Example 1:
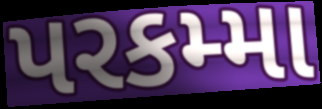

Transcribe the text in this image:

પરકમ્મા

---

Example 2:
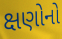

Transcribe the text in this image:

ક્ષણોનો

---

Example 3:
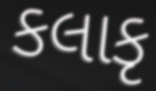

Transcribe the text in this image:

કલાકૃ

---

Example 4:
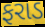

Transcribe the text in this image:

ફરાડ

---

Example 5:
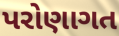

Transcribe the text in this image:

પરોણાગત